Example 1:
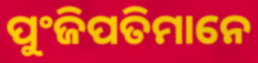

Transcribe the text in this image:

ପୁଂଜିପତିମାନେ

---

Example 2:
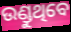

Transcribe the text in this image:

ଉଣ୍ଡୁଥିବେ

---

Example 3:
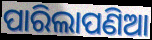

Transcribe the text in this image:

ପାରିଲାପଣିଆ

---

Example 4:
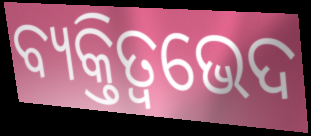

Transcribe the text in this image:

ବ୍ୟକ୍ତିତ୍ୱଭେଦ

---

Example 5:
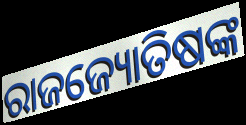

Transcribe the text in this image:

ରାଜଜ୍ୟୋତିଷଙ୍କ